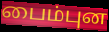
பைம்புன